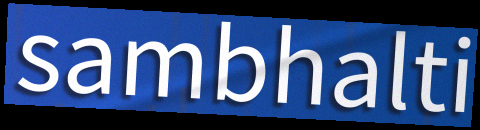
sambhalti